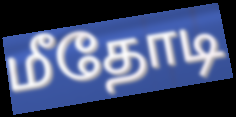
மீதோடி